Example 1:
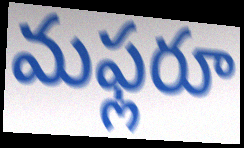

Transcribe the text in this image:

మఫ్లరూ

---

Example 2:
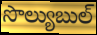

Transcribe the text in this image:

సొల్యుబుల్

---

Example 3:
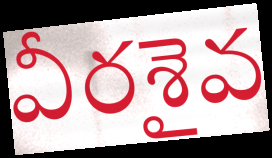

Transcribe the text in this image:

వీరశైవ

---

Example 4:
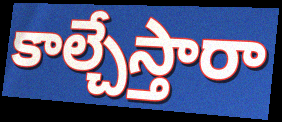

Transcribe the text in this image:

కాల్చేస్తారా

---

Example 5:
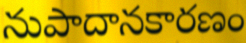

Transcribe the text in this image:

నుపాదానకారణం